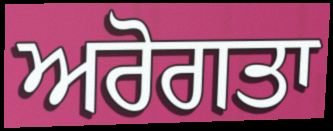
ਅਰੋਗਤਾ